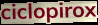
ciclopirox